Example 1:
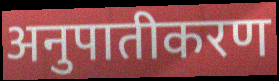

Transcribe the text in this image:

अनुपातीकरण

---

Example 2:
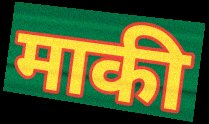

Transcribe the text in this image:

माकी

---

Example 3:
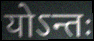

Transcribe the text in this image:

योऽन्तः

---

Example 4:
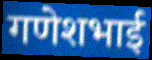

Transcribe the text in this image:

गणेशभाई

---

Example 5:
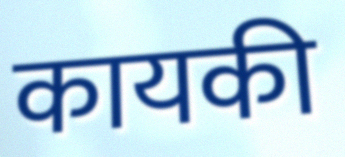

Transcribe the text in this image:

कायकी